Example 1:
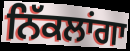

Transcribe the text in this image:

ਨਿੱਕਲਾਂਗਾ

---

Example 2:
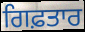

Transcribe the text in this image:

ਗਿਫ਼ਤਾਰ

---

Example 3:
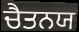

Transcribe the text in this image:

ਚੈਤਨਯ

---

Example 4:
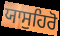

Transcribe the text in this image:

ਯਾਸੁਹਿਰੋ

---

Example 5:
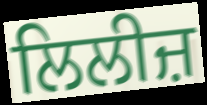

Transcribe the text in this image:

ਲਿਲੀਜ਼